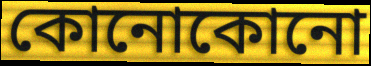
কোনোকোনো